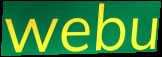
webu